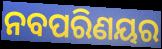
ନବପରିଣୟର